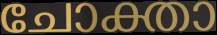
ചോക്താ